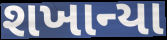
શખાન્યા